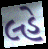
લ્હે